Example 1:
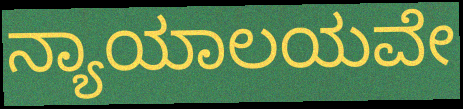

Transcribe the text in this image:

ನ್ಯಾಯಾಲಯವೇ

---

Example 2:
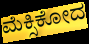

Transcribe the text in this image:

ಮೆಕ್ಸಿಕೋದ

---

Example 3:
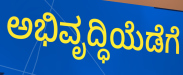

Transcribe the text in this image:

ಅಭಿವೃದ್ಧಿಯೆಡೆಗೆ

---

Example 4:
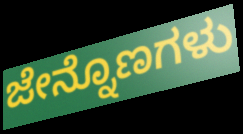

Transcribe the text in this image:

ಜೇನ್ನೊಣಗಳು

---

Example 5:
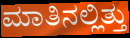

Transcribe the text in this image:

ಮಾತಿನಲ್ಲಿತ್ತು